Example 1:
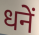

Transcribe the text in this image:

धनें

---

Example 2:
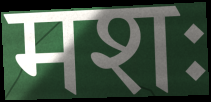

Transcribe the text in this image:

मशः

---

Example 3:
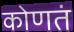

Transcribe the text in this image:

कोणतं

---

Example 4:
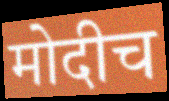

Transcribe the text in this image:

मोदीच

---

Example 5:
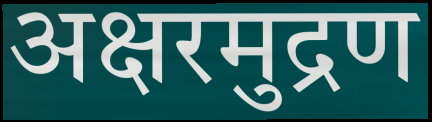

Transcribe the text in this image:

अक्षरमुद्रण